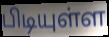
பிடியுள்ள